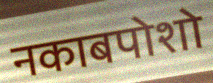
नकाबपोशो